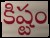
కిష్టం